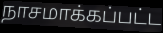
நாசமாக்கப்பட்ட